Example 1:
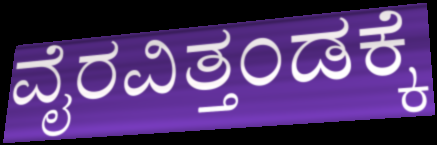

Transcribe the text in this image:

ವೈರವಿತ್ತಂಡಕ್ಕೆ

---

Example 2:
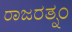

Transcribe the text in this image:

ರಾಜರತ್ನಂ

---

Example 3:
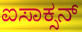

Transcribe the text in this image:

ಐಸಾಕ್ಸನ್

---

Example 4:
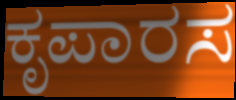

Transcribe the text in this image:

ಕೃಪಾರಸ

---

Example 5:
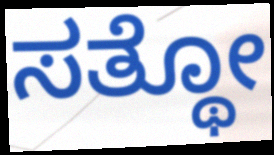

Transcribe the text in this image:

ಸತ್ಥೋ